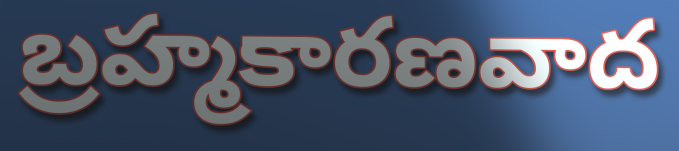
బ్రహ్మకారణవాద